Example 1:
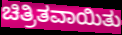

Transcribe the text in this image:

ಚಿತ್ರಿತವಾಯಿತು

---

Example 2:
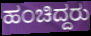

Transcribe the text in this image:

ಹಂಚಿದ್ದರು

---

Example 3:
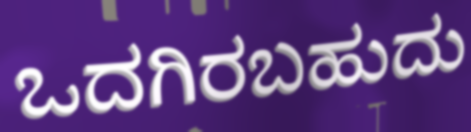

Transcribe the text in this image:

ಒದಗಿರಬಹುದು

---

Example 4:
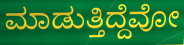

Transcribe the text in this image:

ಮಾಡುತ್ತಿದ್ದೆವೋ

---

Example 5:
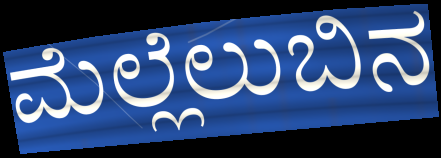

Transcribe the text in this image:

ಮೆಲ್ಲೆಲುಬಿನ